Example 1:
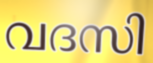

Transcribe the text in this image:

വദസി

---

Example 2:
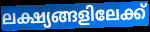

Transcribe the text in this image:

ലക്ഷ്യങ്ങളിലേക്ക്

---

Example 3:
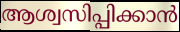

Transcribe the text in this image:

ആശ്വസിപ്പിക്കാൻ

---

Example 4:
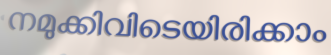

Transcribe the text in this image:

നമുക്കിവിടെയിരിക്കാം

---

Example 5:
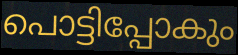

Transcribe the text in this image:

പൊട്ടിപ്പോകും